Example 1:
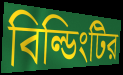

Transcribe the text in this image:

বিল্ডিংটির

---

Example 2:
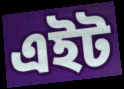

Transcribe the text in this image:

এইট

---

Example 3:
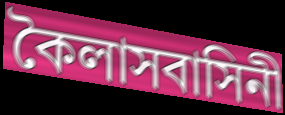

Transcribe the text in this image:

কৈলাসবাসিনী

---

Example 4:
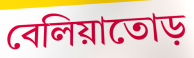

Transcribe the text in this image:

বেলিয়াতোড়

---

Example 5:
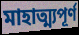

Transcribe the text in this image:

মাহাত্ম্যপূর্ণ